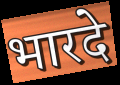
भारदे